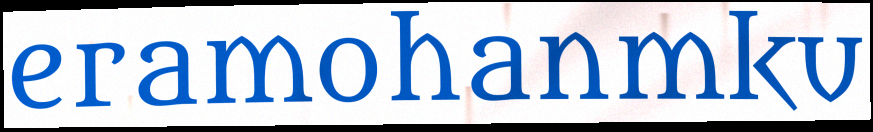
eramohanmku